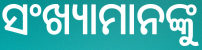
ସଂଖ୍ୟାମାନଙ୍କୁ